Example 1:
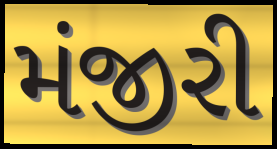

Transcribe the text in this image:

મંજીરી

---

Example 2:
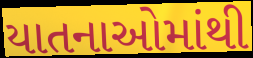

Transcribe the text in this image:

યાતનાઓમાંથી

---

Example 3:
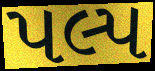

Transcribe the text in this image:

પલ્પ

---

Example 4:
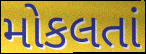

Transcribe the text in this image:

મોકલતાં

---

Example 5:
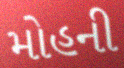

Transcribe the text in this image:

મોહની